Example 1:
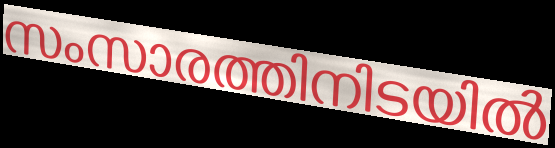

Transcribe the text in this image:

സംസാരത്തിനിടയിൽ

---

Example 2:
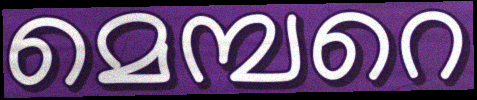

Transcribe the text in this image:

മെമ്പറെ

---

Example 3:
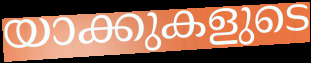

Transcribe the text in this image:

യാക്കുകളുടെ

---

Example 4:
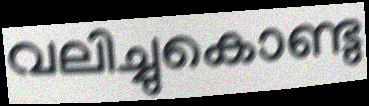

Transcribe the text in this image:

വലിച്ചുകൊണ്ടു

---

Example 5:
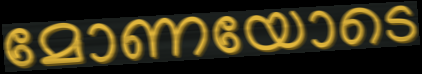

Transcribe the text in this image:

മോണയോടെ